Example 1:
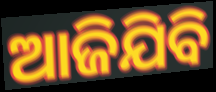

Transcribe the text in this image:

ଆଜିଯିବି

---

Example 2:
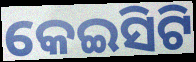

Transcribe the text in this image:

କେଇସିଟି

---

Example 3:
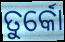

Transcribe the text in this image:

ତୁର୍କୋ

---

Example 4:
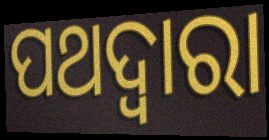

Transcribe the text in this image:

ପଥଦ୍ଵାରା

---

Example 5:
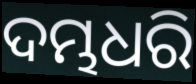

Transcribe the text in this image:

ଦମ୍ଭଧରି